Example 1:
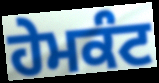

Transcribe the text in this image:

ਹੇਮਕੰਟ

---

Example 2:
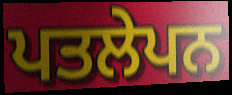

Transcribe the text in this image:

ਪਤਲੇਪਨ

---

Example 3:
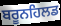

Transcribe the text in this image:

ਬਰੂਨਹਿਲਡ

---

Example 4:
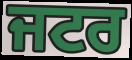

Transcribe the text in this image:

ਜਟਰ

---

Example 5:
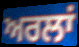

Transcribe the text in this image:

ਅਰਲਾਂ